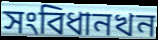
সংবিধানখন